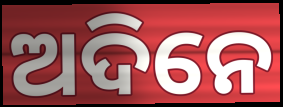
ଅଦିନେ